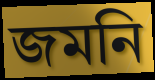
জমনি